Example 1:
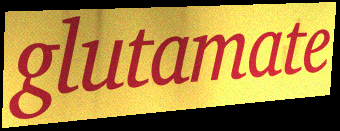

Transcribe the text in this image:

glutamate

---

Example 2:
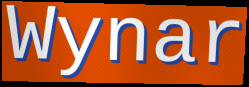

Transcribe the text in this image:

Wynar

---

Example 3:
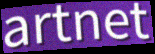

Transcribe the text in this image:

artnet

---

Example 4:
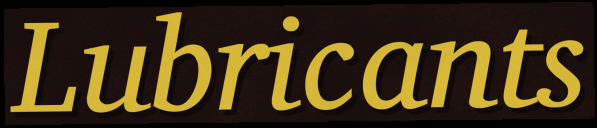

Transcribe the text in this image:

Lubricants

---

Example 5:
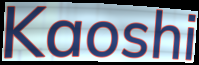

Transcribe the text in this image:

Kaoshi